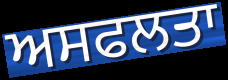
ਅਸਫਲਤਾ